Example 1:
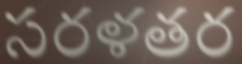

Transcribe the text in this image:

సరళతర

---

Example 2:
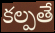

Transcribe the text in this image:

కల్పతే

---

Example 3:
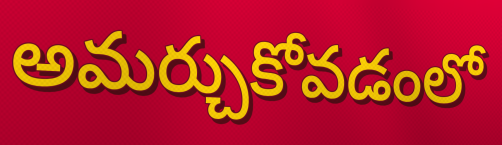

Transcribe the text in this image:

అమర్చుకోవడంలో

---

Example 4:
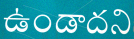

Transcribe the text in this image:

ఉండాదని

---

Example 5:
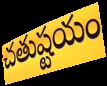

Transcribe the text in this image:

చతుష్టయం